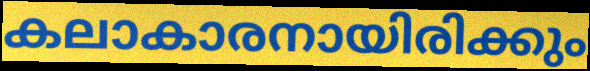
കലാകാരനായിരിക്കും